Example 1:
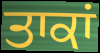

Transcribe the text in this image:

ਤਾਕਾਂ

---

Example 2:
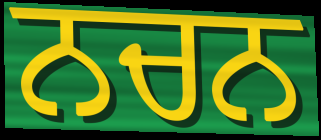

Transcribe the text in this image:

ਨਚਨ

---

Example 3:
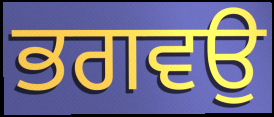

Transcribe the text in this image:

ਭਗਵਉ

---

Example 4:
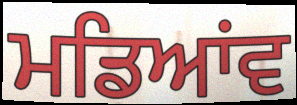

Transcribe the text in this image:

ਮਡਿਆਂਵ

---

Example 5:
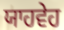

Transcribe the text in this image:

ਯਾਹਵੇਹ